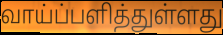
வாய்ப்பளித்துள்ளது